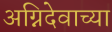
अग्निदेवाच्या